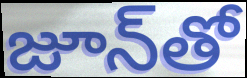
జూన్‌తో